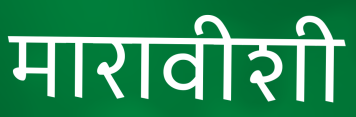
मारावीशी